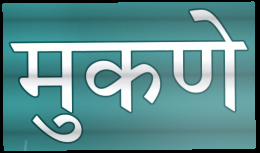
मुकणे